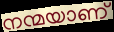
നന്മയാണ്